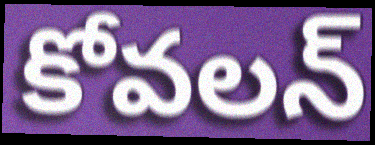
కోవలన్